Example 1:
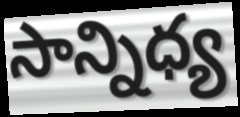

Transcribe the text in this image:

సాన్నిధ్య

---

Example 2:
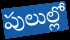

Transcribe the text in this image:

పులుల్లో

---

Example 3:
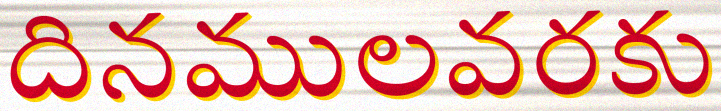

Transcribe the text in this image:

దినములవరకు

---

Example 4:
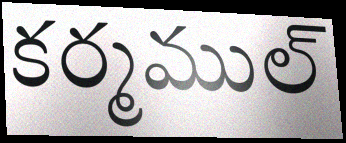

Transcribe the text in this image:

కర్మముల్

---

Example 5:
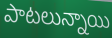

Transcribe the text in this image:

పాటలున్నాయి